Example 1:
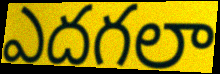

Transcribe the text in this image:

ఎదగలా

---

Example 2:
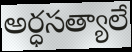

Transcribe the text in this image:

అర్ధసత్యాలే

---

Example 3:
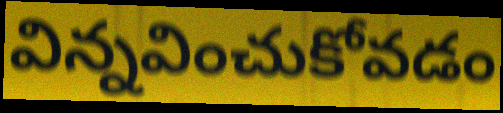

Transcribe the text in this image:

విన్నవించుకోవడం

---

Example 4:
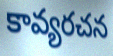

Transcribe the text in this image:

కావ్యరచన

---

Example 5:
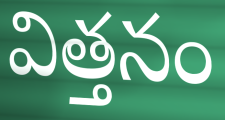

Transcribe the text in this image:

విత్తనం